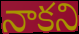
నాకని